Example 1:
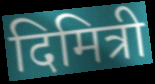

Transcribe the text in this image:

दिमित्री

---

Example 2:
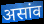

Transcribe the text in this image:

असांव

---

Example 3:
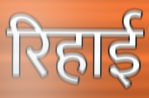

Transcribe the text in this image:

रिहाई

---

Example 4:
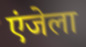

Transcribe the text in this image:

एंजेला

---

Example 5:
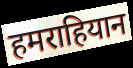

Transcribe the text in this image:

हमराहियान